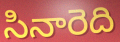
సినారెది